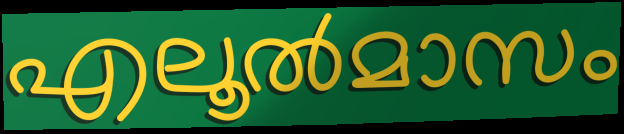
എലൂൽമാസം